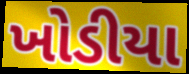
ખોડીયા